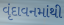
વૃંદાવનમાંથી